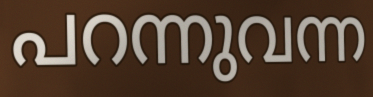
പറന്നുവന്ന